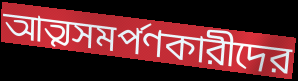
আত্মসমর্পণকারীদের